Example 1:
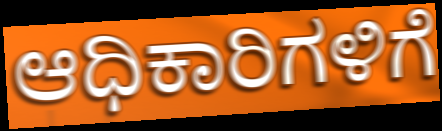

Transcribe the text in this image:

ಆಧಿಕಾರಿಗಳಿಗೆ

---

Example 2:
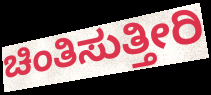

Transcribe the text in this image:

ಚಿಂತಿಸುತ್ತೀರಿ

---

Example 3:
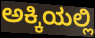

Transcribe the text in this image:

ಅಕ್ಕಿಯಲ್ಲಿ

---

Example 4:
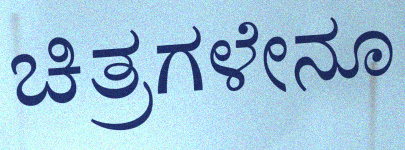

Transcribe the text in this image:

ಚಿತ್ರಗಳೇನೂ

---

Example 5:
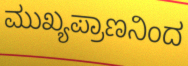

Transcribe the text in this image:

ಮುಖ್ಯಪ್ರಾಣನಿಂದ